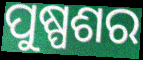
ପୁଷ୍ପଶର